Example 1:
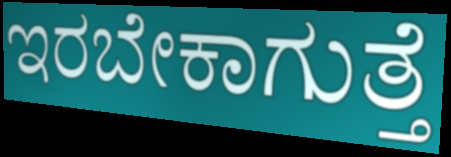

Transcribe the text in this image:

ಇರಬೇಕಾಗುತ್ತೆ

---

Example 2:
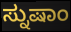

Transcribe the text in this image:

ಸ್ನುಷಾಂ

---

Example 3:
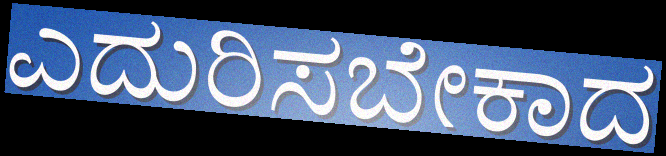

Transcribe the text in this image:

ಎದುರಿಸಬೇಕಾದ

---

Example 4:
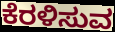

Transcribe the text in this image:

ಕೆರಳಿಸುವ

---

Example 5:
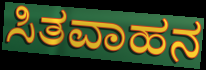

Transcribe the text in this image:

ಸಿತವಾಹನ